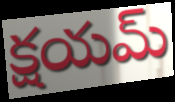
క్షయమ్